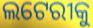
ଲଟେରୀକୁ